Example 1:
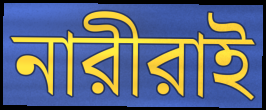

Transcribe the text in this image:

নারীরাই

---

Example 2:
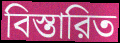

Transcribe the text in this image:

বিস্তারিত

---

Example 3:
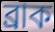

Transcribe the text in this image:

ব্রাক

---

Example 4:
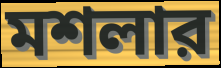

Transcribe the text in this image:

মশলার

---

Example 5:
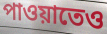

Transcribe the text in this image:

পাওয়াতেও